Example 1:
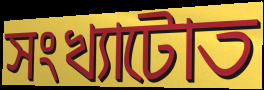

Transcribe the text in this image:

সংখ্যাটোত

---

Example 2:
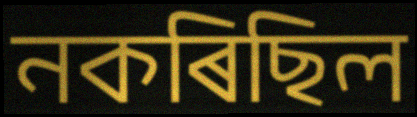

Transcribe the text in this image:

নকৰিছিল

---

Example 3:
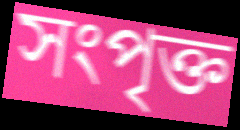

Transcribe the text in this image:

সংপৃক্ত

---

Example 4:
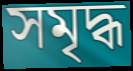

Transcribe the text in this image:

সমৃদ্ধ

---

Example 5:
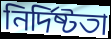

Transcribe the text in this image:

নিৰ্দিষ্টতা